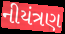
નીયંત્રણ